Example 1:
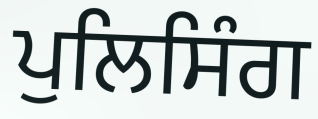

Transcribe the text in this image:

ਪੁਲਿਸਿੰਗ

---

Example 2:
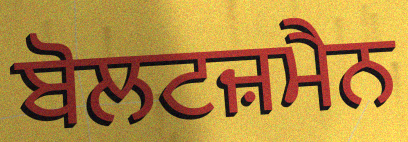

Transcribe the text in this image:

ਬੋਲਟਜ਼ਮੈਨ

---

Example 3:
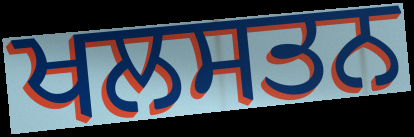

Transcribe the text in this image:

ਖਲਸਤਨ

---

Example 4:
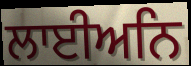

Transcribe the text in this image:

ਲਾਈਅਨਿ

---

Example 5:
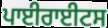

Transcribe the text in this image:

ਪਾਈਰਾਈਟਸ